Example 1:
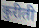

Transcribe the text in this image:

कुरीती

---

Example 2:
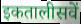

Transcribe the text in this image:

इकतालीसवें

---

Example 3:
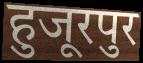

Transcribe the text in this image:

हुजूरपुर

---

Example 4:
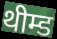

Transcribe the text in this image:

थीम्ड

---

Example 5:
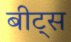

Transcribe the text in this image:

बीट्स